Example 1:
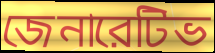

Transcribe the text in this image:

জেনারেটিভ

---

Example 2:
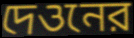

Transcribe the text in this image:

দেওনের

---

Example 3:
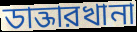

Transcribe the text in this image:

ডাক্তারখানা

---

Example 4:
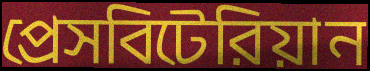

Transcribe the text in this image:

প্রেসবিটেরিয়ান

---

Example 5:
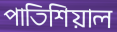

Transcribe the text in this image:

পাতিশিয়াল